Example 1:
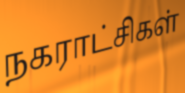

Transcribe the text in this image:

நகராட்சிகள்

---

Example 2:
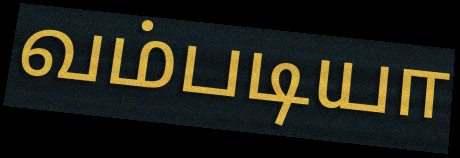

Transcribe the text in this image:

வம்படியா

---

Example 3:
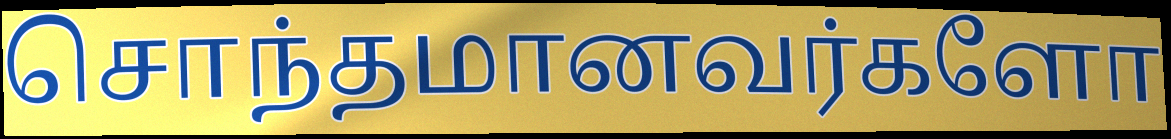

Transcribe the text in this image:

சொந்தமானவர்களோ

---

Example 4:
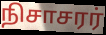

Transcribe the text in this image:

நிசாசரர்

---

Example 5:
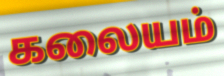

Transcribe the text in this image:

கலையம்